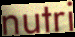
nutri